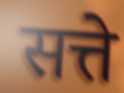
सत्ते